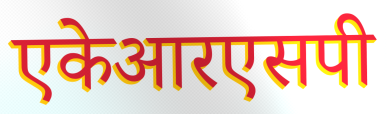
एकेआरएसपी